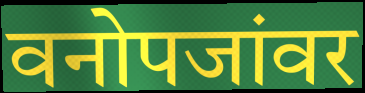
वनोपजांवर